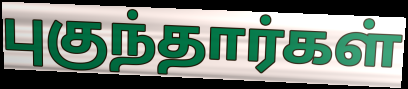
புகுந்தார்கள்